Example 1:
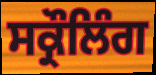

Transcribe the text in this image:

ਸਕ੍ਰੌਲਿੰਗ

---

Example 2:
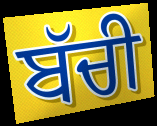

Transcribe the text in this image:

ਬੱਚੀ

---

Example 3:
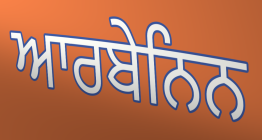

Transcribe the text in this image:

ਆਰਬੇਨਿਨ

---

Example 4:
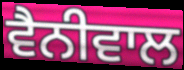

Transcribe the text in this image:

ਵੈਨੀਵਾਲ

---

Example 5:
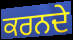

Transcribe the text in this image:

ਕਰਨਦੇ